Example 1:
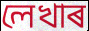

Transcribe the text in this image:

লেখাৰ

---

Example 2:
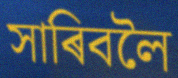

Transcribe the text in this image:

সাৰিবলৈ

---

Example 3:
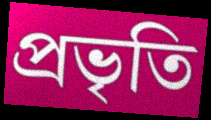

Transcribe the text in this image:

প্ৰভৃতি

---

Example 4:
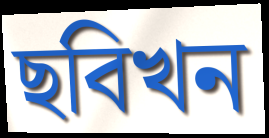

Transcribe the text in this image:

ছবিখন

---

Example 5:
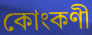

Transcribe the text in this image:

কোংকণী